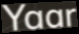
Yaar